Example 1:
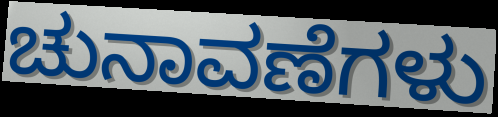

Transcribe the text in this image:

ಚುನಾವಣೆಗಳು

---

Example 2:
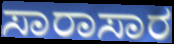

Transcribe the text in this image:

ಸಾರಾಸಾರ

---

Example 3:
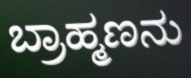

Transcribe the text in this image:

ಬ್ರಾಹ್ಮಣನು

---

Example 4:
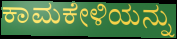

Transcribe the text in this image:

ಕಾಮಕೇಳಿಯನ್ನು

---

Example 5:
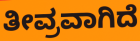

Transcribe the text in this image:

ತೀವ್ರವಾಗಿದೆ